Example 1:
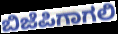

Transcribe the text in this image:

ಬಿಜೆಪಿಗಾಗಲಿ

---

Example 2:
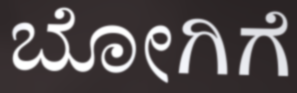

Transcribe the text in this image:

ಬೋಗಿಗೆ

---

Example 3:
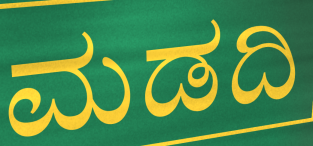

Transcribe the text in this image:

ಮಡದಿ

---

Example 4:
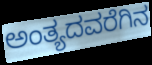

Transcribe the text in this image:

ಅಂತ್ಯದವರೆಗಿನ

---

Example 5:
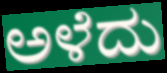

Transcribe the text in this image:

ಅಳೆದು